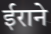
ईराने